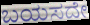
ಬಯಸದೇ